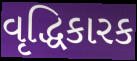
વૃદ્ધિકારક